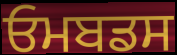
ਓਮਬਡਸ